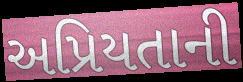
અપ્રિયતાની